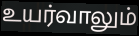
உயர்வாலும்